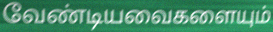
வேண்டியவைகளையும்